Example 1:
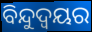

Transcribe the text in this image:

ବିନ୍ଦୁଦ୍ବୟର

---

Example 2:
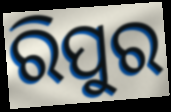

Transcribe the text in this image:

ରିପୁର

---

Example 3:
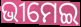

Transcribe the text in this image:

ଭୀମେଇ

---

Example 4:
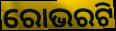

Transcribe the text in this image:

ରୋଭରଟି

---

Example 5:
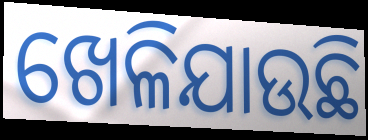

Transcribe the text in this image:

ଖେଳିଯାଉଛି